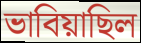
ভাবিয়াছিল